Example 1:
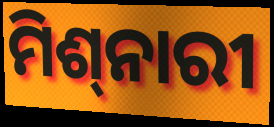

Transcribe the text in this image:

ମିଶ୍‍ନାରୀ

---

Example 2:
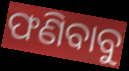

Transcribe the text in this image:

ଫଣିବାବୁ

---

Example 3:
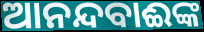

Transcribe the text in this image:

ଆନନ୍ଦବାଈଙ୍କ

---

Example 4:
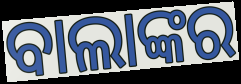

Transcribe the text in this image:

ବାଲାଙ୍କର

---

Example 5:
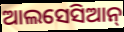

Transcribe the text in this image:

ଆଲସେସିଆନ୍